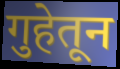
गुहेतून